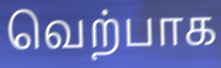
வெற்பாக